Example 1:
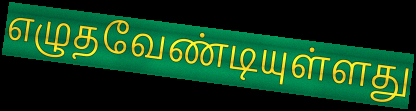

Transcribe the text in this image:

எழுதவேண்டியுள்ளது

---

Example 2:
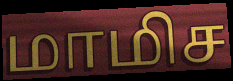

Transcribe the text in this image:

மாமிச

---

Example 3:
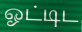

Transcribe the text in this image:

ஓட்டிட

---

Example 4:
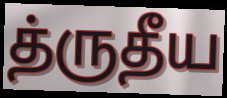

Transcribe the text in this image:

த்ருதீய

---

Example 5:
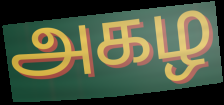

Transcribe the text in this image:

அகழ